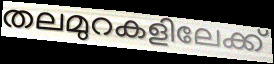
തലമുറകളിലേക്ക്